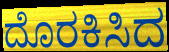
ದೊರಕಿಸಿದ